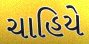
ચાહિયે